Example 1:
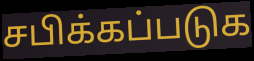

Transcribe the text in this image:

சபிக்கப்படுக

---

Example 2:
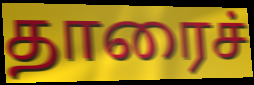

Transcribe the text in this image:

தாரைச்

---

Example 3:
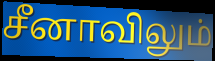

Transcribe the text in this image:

சீனாவிலும்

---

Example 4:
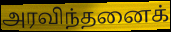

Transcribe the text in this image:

அரவிந்தனைக்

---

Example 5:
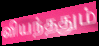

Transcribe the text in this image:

வியந்ததும்